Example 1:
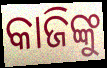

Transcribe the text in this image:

କାଜିଙ୍କୁ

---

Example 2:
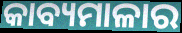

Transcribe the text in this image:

କାବ୍ୟମାଳାର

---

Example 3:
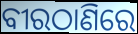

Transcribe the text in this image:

ବୀରଠାଣିରେ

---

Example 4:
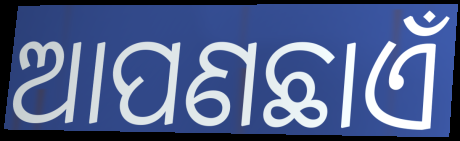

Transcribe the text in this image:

ଆପଣଛାଏଁ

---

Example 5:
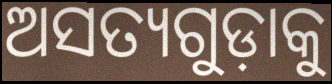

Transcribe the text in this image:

ଅସତ୍ୟଗୁଡ଼ାକୁ